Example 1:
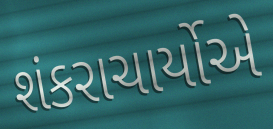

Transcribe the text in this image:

શંકરાચાર્યોએ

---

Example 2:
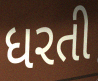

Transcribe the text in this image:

ધરતી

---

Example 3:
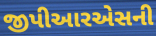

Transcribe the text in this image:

જીપીઆરએસની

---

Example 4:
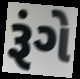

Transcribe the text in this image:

રૂંગે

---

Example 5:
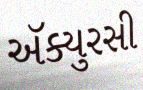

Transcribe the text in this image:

ઍક્યુરસી